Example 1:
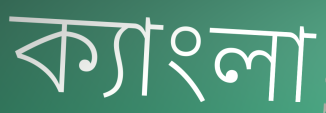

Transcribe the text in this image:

ক্যাংলা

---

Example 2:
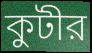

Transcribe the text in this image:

কুটীর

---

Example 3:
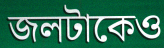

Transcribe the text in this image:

জলটাকেও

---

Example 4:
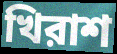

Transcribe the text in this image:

খিরাশ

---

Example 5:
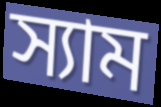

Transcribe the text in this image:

স্যাম